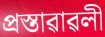
প্ৰস্তাৱাৱলী